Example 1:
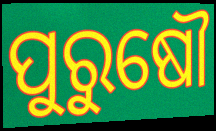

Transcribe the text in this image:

ପୁରୁଷୌ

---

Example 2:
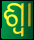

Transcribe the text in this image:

ଶ୍ୱା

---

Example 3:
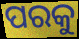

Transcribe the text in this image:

ପରକୁ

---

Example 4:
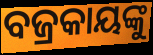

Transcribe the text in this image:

ବଜ୍ରକାୟଙ୍କୁ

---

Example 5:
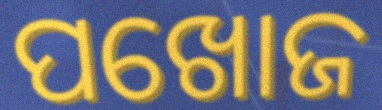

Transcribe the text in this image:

ପଖୋଜ